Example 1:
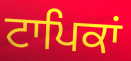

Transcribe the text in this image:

ਟਾਪਿਕਾਂ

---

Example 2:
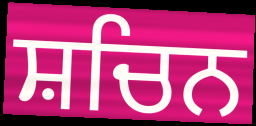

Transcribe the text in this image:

ਸ਼ਚਿਨ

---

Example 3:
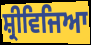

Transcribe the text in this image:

ਸ਼੍ਰੀਵਿਜਿਆ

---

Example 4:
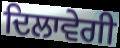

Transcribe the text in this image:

ਦਿਲਾਵੇਗੀ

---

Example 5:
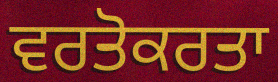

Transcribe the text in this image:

ਵਰਤੋਕਰਤਾ